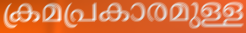
ക്രമപ്രകാരമുള്ള